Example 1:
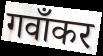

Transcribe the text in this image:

गवाँकर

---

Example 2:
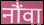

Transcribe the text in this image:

नौंवा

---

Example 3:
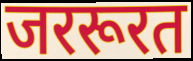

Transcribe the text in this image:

जररूरत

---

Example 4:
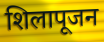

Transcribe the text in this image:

शिलापूजन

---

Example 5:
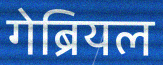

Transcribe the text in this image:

गेब्रियल